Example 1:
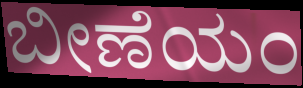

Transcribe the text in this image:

ಬೀಣೆಯಂ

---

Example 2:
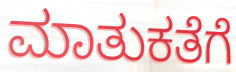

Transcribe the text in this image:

ಮಾತುಕತೆಗೆ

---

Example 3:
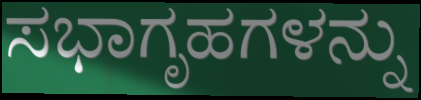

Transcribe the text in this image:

ಸಭಾಗೃಹಗಳನ್ನು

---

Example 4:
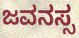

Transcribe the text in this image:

ಜವನಸ್ಸ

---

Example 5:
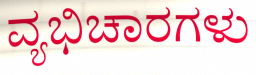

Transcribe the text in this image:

ವ್ಯಭಿಚಾರಗಳು